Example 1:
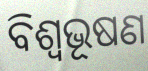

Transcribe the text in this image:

ବିଶ୍ବଭୂଷଣ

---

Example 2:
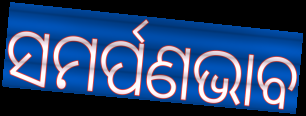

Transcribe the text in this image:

ସମର୍ପଣଭାବ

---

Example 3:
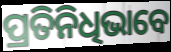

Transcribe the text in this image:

ପ୍ରତିନିଧିଭାବେ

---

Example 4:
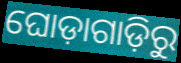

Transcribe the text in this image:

ଘୋଡ଼ାଗାଡ଼ିରୁ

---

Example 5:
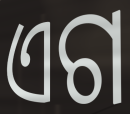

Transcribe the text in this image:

ଏଗ